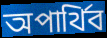
অপার্থিব